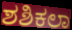
ಶಶಿಕಲಾ